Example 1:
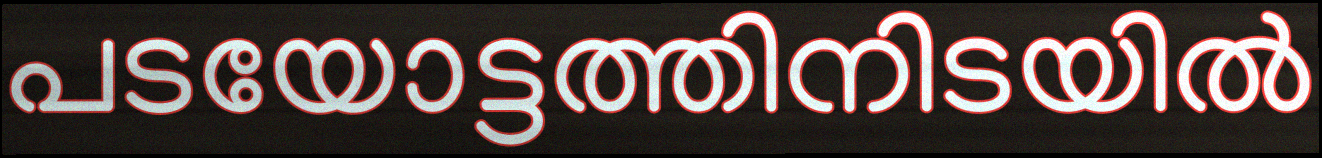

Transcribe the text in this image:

പടയോട്ടത്തിനിടയിൽ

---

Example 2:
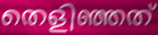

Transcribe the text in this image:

തെളിഞ്ഞത്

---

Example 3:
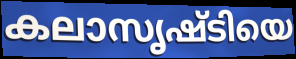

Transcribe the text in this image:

കലാസൃഷ്ടിയെ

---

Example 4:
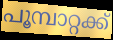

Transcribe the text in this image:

പൂമ്പാറ്റക്ക്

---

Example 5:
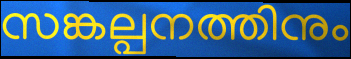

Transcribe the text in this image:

സങ്കല്പനത്തിനും